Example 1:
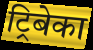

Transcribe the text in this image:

ट्रिबेका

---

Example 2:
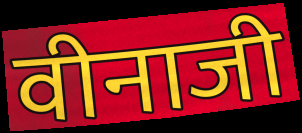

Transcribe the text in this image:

वीनाजी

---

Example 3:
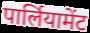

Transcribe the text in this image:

पार्लियामेंट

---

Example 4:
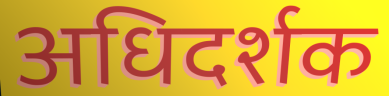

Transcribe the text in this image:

अधिदर्शक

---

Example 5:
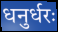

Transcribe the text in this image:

धनुर्धरः